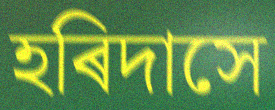
হৰিদাসে